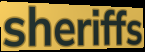
sheriffs